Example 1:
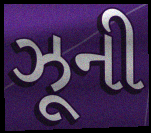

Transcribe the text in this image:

ઝૂની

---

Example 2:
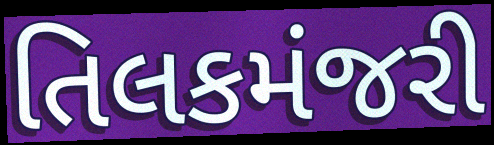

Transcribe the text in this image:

તિલકમંજરી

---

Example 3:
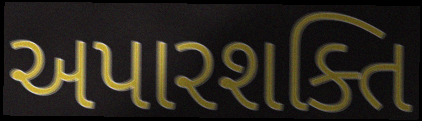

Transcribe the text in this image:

અપારશક્તિ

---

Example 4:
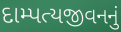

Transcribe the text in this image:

દામ્પત્યજીવનનું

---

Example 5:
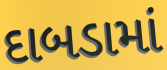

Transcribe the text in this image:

દાબડામાં